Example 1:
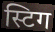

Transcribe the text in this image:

स्टिग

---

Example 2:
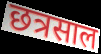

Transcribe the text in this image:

छत्रसाल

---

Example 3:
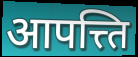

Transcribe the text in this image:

आपत्त्ति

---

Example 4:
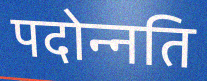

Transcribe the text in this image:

पदोन्नति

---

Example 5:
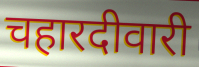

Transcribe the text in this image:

चहारदीवारी